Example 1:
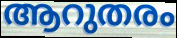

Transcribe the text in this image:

ആറുതരം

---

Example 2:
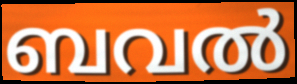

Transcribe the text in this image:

ബവൽ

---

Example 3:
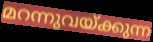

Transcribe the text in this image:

മറന്നുവയ്ക്കുന്ന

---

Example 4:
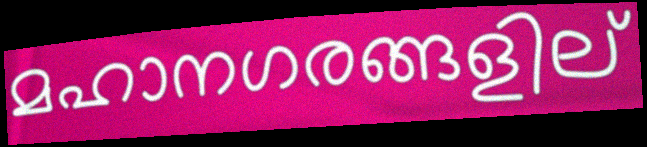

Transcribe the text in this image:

മഹാനഗരങ്ങളില്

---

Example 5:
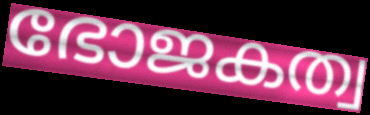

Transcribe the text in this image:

ഭോജകത്വ